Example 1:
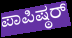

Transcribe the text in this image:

ಪಾಪಿಷ್ಠರ್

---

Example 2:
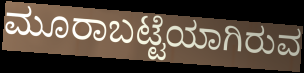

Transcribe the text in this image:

ಮೂರಾಬಟ್ಟೆಯಾಗಿರುವ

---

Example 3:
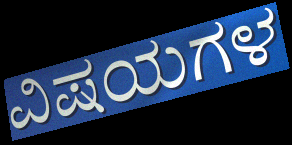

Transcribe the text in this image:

ವಿಷಯಗಳ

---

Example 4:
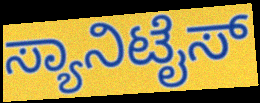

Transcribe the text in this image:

ಸ್ಯಾನಿಟೈಸ್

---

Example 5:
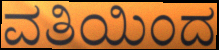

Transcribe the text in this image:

ವತಿಯಿಂದ